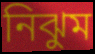
নিঝুম